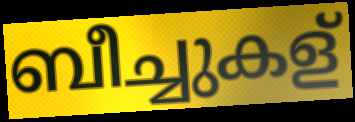
ബീച്ചുകള്